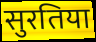
सुरतिया